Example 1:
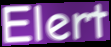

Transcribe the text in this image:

Elert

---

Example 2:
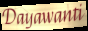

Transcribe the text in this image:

Dayawanti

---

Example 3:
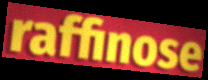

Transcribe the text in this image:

raffinose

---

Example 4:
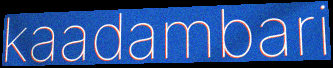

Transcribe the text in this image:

kaadambari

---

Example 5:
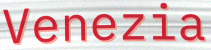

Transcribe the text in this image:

Venezia